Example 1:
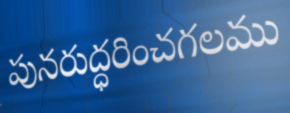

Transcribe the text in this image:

పునరుద్ధరించగలము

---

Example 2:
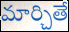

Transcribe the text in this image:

మార్చితే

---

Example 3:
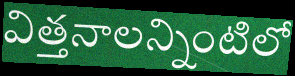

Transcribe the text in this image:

విత్తనాలన్నింటిలో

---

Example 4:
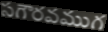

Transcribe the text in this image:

సగౌరవముగ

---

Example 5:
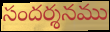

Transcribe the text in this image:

సందర్శనము